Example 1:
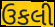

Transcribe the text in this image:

ઉકલી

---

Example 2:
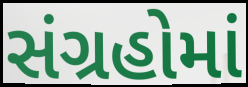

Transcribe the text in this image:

સંગ્રહોમાં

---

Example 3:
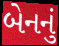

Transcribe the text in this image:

બેનનું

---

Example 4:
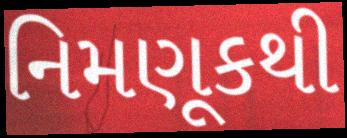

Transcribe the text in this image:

નિમણૂકથી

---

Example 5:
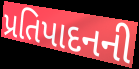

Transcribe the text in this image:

પ્રતિપાદનની